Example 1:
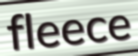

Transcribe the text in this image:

fleece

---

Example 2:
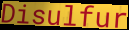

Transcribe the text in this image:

Disulfur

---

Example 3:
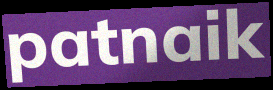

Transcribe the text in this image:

patnaik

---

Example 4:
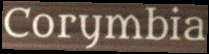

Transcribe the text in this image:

Corymbia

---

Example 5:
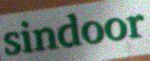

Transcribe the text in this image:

sindoor